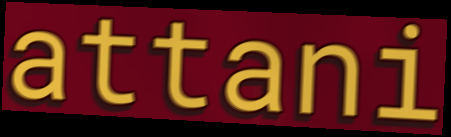
attani